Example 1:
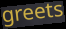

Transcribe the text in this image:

greets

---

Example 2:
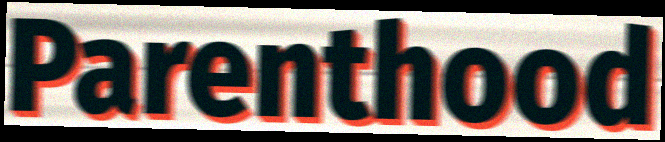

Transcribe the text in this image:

Parenthood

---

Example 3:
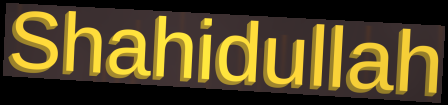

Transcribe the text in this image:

Shahidullah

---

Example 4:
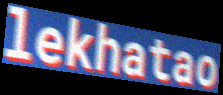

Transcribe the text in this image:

lekhatao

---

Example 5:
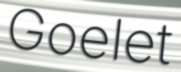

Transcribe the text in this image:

Goelet